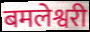
बमलेश्वरी